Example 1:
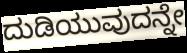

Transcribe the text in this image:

ದುಡಿಯುವುದನ್ನೇ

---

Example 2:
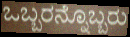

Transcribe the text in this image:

ಒಬ್ಬರನ್ನೊಬ್ಬರು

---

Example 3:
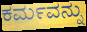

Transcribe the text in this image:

ಕರ್ಮವನ್ನು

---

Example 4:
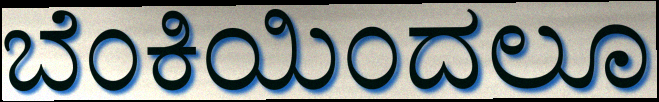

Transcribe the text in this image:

ಬೆಂಕಿಯಿಂದಲೂ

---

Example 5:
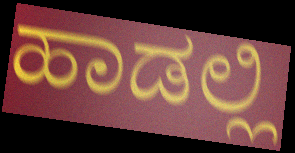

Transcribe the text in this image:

ಹಾಡಲ್ಲಿ